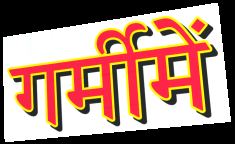
गर्मीमें